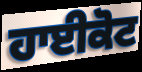
ਹਾਈਕੋਟ